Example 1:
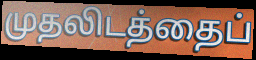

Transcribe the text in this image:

முதலிடத்தைப்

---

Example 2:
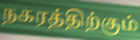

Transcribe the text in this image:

நகரத்திற்கும்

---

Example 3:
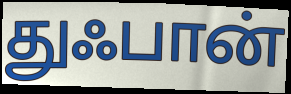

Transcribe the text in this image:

துஃபான்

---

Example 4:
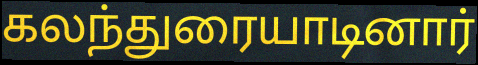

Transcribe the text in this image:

கலந்துரையாடினார்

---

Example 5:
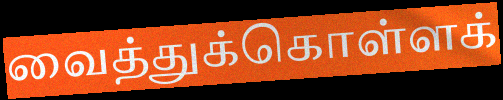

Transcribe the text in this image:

வைத்துக்கொள்ளக்